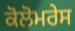
ਕੋਲੋਮਰੇਸ